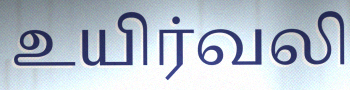
உயிர்வலி